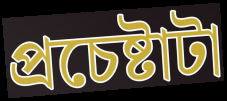
প্রচেষ্টাটা